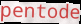
pentode